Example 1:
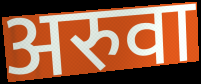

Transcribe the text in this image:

अरुवा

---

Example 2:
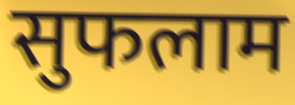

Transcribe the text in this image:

सुफलाम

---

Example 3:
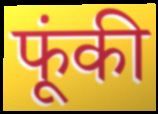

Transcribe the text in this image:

फूंकी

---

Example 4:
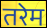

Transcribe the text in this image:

तरेम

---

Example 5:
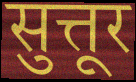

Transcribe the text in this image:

सुत्तूर